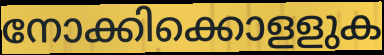
നോക്കിക്കൊളളുക